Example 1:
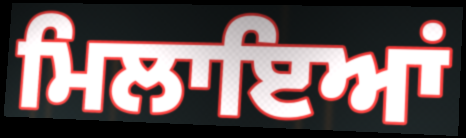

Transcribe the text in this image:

ਮਿਲਾਇਆਂ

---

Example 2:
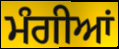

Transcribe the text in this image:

ਮੰਗੀਆਂ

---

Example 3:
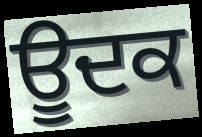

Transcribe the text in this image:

ਊਦਕ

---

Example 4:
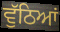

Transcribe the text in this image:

ਵੁੱਠਿਆਂ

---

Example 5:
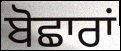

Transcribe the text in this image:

ਬੋਛਾਰਾਂ